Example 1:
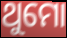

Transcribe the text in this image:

ଥୁମୋ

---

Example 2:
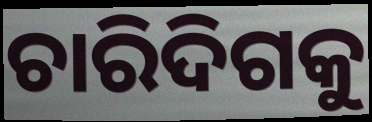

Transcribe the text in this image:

ଚାରିଦିଗକୁ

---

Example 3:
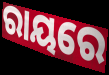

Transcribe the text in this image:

ରାୟରେ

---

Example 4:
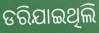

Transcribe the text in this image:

ଡରିଯାଇଥିଲି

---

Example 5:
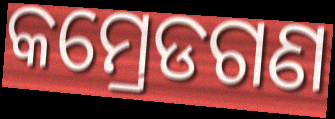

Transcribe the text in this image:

କମ୍ରେଡଗଣ